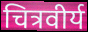
चित्रवीर्य